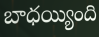
బాధయ్యింది